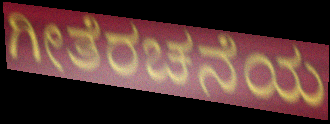
ಗೀತೆರಚನೆಯ